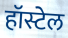
हॉस्टेल